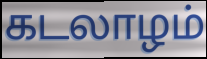
கடலாழம்